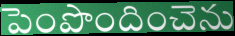
పెంపొందించెను